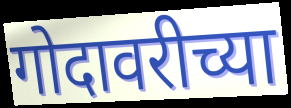
गोदावरीच्या